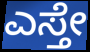
ಎಸ್ತೇ